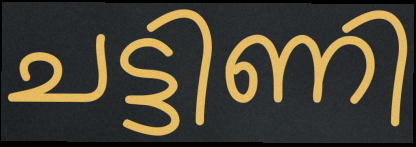
ചട്ടിണി